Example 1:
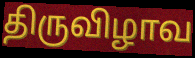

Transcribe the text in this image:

திருவிழாவ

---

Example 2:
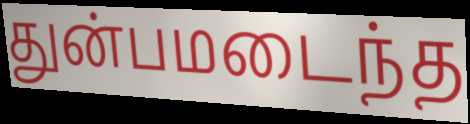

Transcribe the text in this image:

துன்பமடைந்த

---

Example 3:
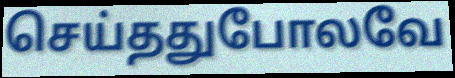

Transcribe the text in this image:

செய்ததுபோலவே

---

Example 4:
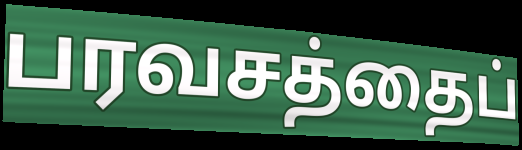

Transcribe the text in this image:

பரவசத்தைப்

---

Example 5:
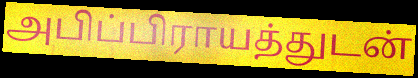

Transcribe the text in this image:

அபிப்பிராயத்துடன்